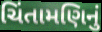
ચિંતામણિનું